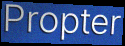
Propter